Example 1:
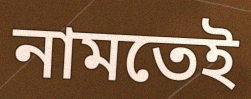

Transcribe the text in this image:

নামতেই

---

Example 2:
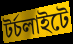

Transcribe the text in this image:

টর্চলাইটে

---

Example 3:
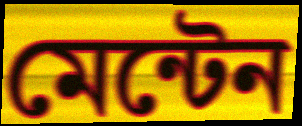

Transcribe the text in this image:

মেন্টেন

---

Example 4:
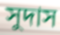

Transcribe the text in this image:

সুদাস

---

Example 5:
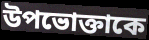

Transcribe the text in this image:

উপভোক্তাকে